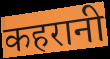
कहरानी